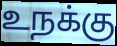
உநக்கு